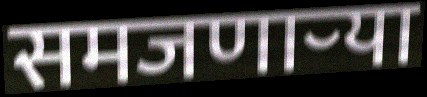
समजणाऱ्या